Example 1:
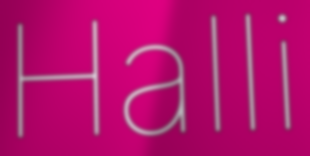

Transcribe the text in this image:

Halli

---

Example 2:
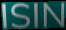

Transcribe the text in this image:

ISIN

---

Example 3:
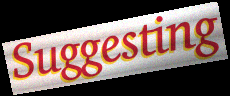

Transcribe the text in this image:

Suggesting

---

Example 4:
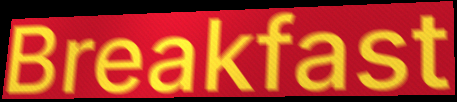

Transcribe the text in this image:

Breakfast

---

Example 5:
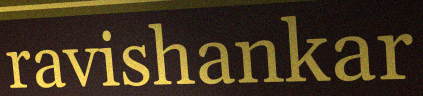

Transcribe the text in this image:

ravishankar